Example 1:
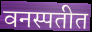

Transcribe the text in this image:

वनस्पतीत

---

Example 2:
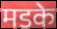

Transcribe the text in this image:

मडके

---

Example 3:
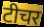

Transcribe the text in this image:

टीचर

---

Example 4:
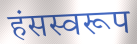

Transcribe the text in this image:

हंसस्वरूप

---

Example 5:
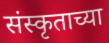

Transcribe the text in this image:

संस्कृताच्या